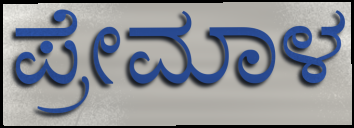
ಪ್ರೇಮಾಳ